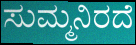
ಸುಮ್ಮನಿರದೆ